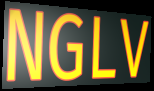
NGLV